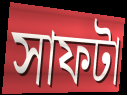
সাফটা